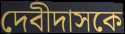
দেবীদাসকে